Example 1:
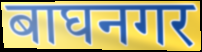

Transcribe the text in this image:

बाघनगर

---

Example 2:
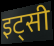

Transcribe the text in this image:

इट्सी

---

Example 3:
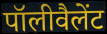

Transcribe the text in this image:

पॉलीवैलेंट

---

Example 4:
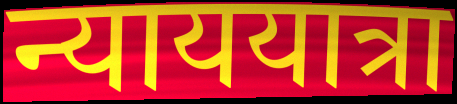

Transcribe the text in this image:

न्याययात्रा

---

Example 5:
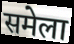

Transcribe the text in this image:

समेला